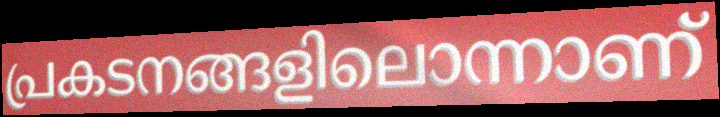
പ്രകടനങ്ങളിലൊന്നാണ്